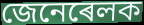
জেনেৰেলক